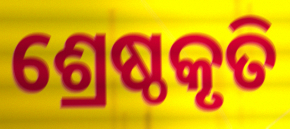
ଶ୍ରେଷ୍ଠକୃତି